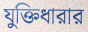
যুক্তিধারার